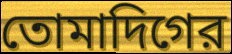
তোমাদিগের